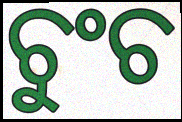
ଚୁଂଚ